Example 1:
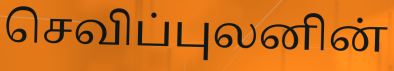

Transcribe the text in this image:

செவிப்புலனின்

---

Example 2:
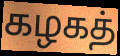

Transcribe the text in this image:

கழகத்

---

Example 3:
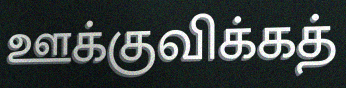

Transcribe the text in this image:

ஊக்குவிக்கத்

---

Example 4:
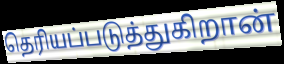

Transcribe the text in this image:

தெரியப்படுத்துகிறான்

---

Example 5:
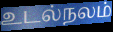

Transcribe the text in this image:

உடல்நலம்